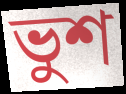
ভুশ